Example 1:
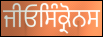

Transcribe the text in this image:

ਜੀਓਸਿੰਕ੍ਰੋਨਸ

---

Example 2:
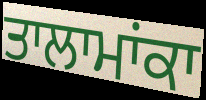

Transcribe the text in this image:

ਤਾਲਾਮਾਂਕਾ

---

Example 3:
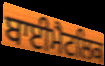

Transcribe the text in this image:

ਬਾਈਮੈਟਲਿਕ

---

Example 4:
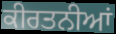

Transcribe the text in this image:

ਕੀਰਤਨੀਆਂ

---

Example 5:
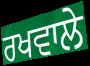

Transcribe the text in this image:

ਰਖਵਾਲੇ